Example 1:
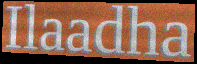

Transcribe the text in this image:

Ilaadha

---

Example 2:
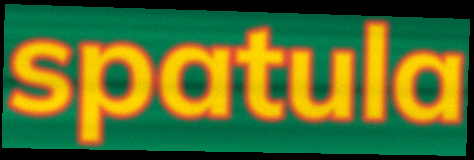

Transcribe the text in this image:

spatula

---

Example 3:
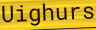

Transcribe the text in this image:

Uighurs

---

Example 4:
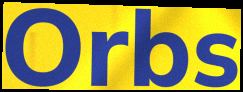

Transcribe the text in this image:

Orbs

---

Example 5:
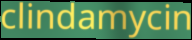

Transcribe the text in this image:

clindamycin